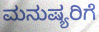
ಮನುಷ್ಯರಿಗೆ